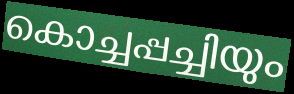
കൊച്ചപ്പച്ചിയും